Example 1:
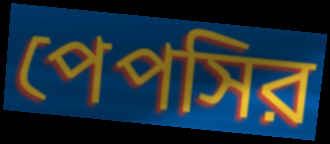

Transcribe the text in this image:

পেপসির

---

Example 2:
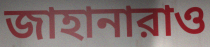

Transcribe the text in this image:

জাহানারাও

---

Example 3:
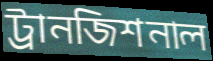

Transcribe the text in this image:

ট্রানজিশনাল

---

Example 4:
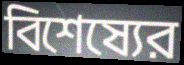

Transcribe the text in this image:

বিশেষ্যের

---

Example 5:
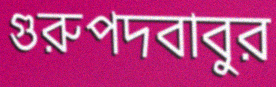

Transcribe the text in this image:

গুরুপদবাবুর